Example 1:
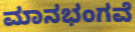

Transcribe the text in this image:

ಮಾನಭಂಗವೆ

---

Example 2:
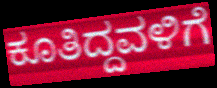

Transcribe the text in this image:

ಕೂತಿದ್ದವಳಿಗೆ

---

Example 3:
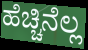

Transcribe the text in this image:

ಹೆಚ್ಚಿನೆಲ್ಲ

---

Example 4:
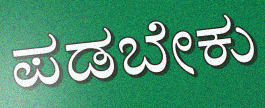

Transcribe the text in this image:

ಪಡಬೇಕು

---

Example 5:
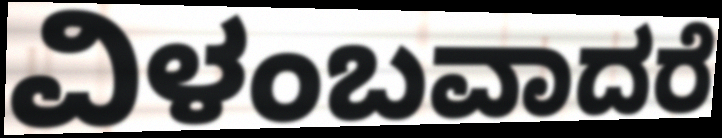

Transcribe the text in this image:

ವಿಳಂಬವಾದರೆ